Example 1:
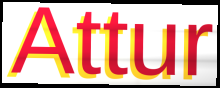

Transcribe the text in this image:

Attur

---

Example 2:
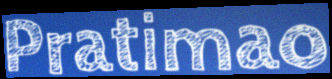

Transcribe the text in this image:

Pratimao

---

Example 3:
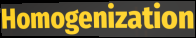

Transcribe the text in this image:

Homogenization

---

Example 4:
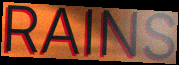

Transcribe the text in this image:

RAINS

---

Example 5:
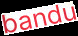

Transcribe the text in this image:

bandu